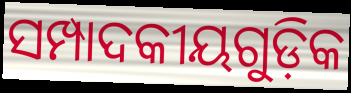
ସମ୍ପାଦକୀୟଗୁଡ଼ିକ